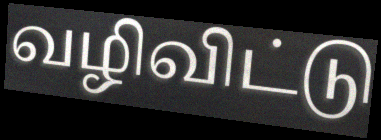
வழிவிட்டு